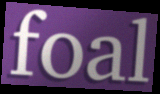
foal